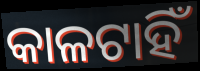
କାଳଟାହିଁ